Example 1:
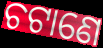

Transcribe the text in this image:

ଚଟାଣେ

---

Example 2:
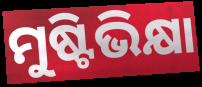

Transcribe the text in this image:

ମୁଷ୍ଟିଭିକ୍ଷା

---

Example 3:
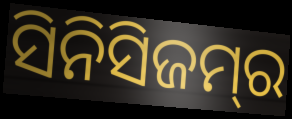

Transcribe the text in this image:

ସିନିସିଜମ୍‌ର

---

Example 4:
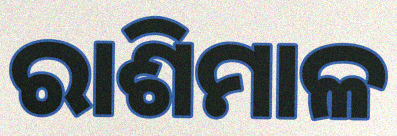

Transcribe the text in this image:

ରାଶିମାଳ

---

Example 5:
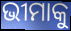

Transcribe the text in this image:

ଭୀମାକୁ